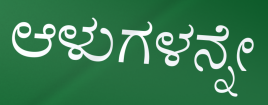
ಆಳುಗಳನ್ನೇ